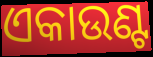
ଏକାଉଣ୍ଟ